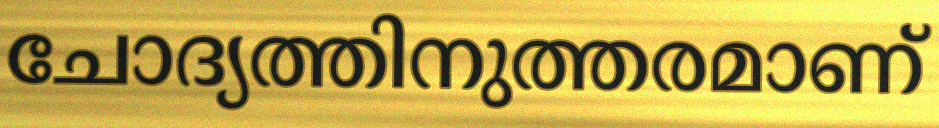
ചോദ്യത്തിനുത്തരമാണ്